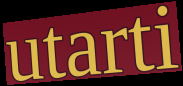
utarti